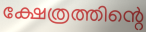
ക്ഷേത്രത്തിന്റെ